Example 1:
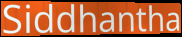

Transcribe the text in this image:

Siddhantha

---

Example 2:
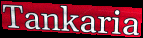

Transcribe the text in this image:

Tankaria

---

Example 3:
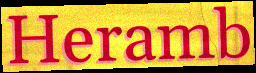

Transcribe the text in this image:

Heramb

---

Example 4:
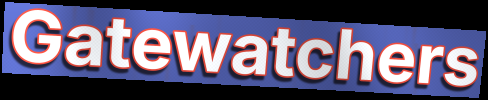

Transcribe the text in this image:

Gatewatchers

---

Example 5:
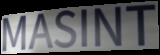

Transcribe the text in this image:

MASINT